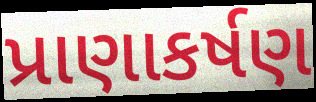
પ્રાણાકર્ષણ